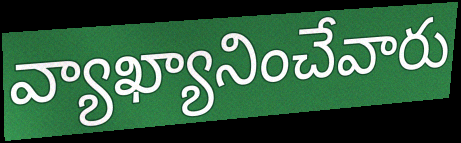
వ్యాఖ్యానించేవారు